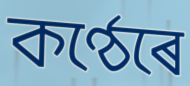
কণ্ঠেৰে